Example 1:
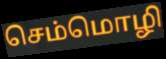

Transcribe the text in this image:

செம்மொழி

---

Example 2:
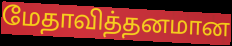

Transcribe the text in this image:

மேதாவித்தனமான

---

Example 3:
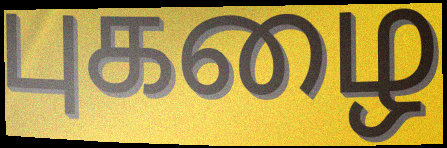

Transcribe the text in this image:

புகழை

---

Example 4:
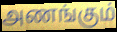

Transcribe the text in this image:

அணங்கும்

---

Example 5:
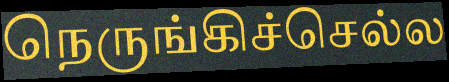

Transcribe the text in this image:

நெருங்கிச்செல்ல